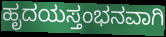
ಹೃದಯಸ್ತಂಭನವಾಗಿ